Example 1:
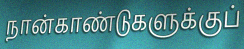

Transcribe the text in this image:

நான்காண்டுகளுக்குப்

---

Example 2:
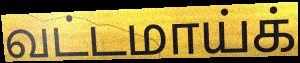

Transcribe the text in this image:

வட்டமாய்க்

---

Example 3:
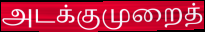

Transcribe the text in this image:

அடக்குமுறைத்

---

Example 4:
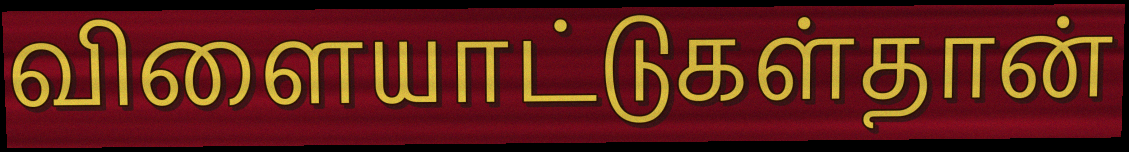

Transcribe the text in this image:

விளையாட்டுகள்தான்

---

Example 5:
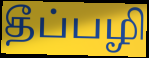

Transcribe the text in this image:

தீப்பழி